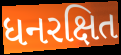
ધનરક્ષિત